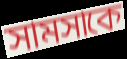
সামসাকে